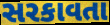
સરકાવતા